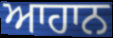
ਆਹਾਨ